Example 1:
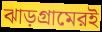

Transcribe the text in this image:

ঝাড়গ্রামেরই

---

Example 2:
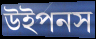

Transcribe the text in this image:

উইপনস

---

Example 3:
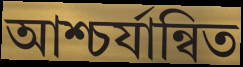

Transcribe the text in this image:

আশ্চর্যান্বিত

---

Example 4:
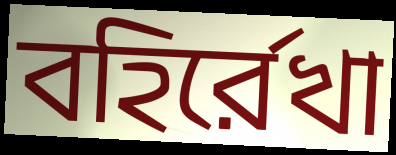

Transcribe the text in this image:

বহির্রেখা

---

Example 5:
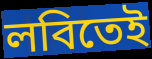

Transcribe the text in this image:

লবিতেই